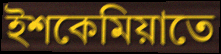
ইশকেমিয়াতে